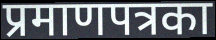
प्रमाणपत्रका